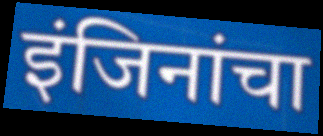
इंजिनांचा